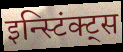
इन्स्टिंक्ट्स